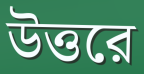
উত্তরে